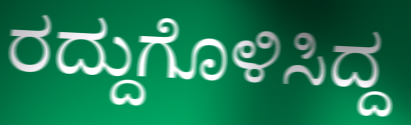
ರದ್ದುಗೊಳಿಸಿದ್ದ